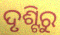
ଦୃଶ୍ଟିରୁ